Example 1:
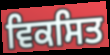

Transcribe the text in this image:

ਵਿਕਸਿਤ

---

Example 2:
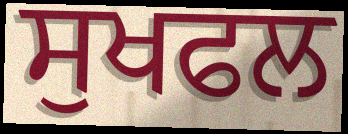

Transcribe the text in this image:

ਸੁਖਫਲ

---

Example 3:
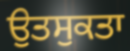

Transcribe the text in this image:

ਉਤਸੁਕਤਾ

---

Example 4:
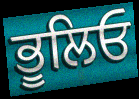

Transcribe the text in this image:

ਭੂਲਿਓ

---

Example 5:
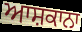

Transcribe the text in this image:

ਆਸ਼ਕਾਨਾ